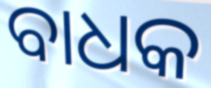
ବାଧକ